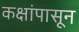
कक्षांपासून